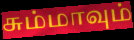
சும்மாவும்